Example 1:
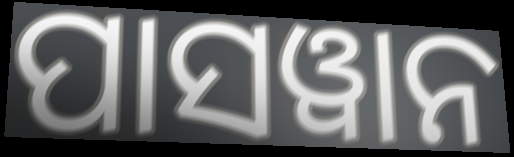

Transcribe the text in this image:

ପାସୱାନ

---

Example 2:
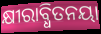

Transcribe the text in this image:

କ୍ଷୀରାବ୍ଧିତନୟା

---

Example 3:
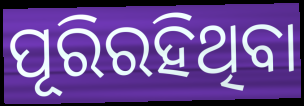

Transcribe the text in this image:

ପୂରିରହିଥିବା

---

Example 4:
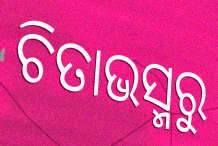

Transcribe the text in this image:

ଚିତାଭସ୍ମରୁ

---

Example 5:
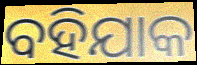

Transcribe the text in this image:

ବହିଯାକ